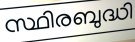
സ്ഥിരബുദ്ധി